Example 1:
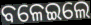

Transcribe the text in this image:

ବଳେଇଲେ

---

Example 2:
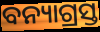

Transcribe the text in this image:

ବନ୍ୟାଗ୍ରସ୍ତ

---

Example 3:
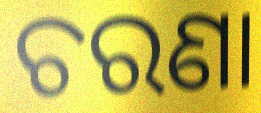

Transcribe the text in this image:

ଚରଣା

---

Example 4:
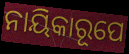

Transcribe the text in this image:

ନାୟିକାରୂପେ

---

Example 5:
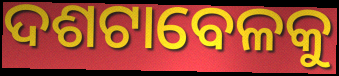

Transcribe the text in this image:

ଦଶଟାବେଳକୁ